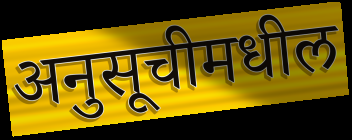
अनुसूचीमधील